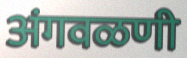
अंगवळणी